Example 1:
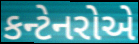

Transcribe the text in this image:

કન્ટેનરોએ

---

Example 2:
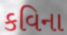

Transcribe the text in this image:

કવિના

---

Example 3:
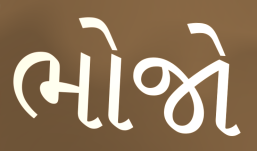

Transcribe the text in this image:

ભોજો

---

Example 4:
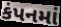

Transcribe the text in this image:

કંપનમાં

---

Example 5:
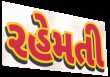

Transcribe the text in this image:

રહેમતી